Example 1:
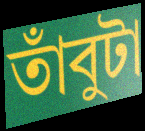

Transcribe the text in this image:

তাঁবুটা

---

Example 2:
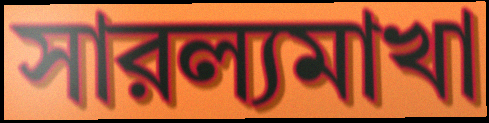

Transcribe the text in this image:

সারল্যমাখা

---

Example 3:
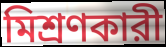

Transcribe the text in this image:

মিশ্রণকারী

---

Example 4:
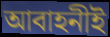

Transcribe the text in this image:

আবাহনীই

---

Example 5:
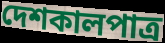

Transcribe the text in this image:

দেশকালপাত্র